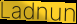
Ladnun